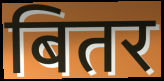
बितर